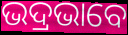
ଭଦ୍ରଭାବେ